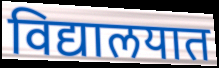
विद्यालयात